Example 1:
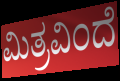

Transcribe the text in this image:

ಮಿತ್ರವಿಂದೆ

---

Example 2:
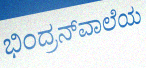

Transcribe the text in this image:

ಭಿಂದ್ರನ್‌ವಾಲೆಯ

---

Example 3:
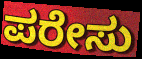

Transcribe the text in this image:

ಪರೇಸು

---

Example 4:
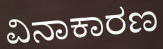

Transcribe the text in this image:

ವಿನಾಕಾರಣ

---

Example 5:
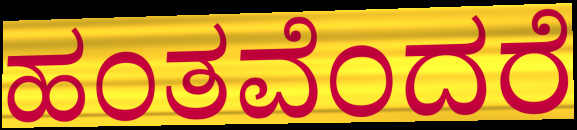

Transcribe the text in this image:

ಹಂತವೆಂದರೆ